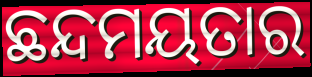
ଛନ୍ଦମୟତାର